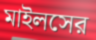
মাইলসের